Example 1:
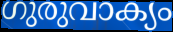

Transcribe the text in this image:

ഗുരുവാക്യം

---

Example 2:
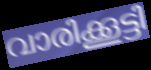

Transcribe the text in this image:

വാരിക്കൂട്ടി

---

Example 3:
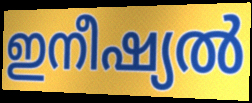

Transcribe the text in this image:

ഇനീഷ്യൽ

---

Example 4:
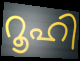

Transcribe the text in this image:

റൂഹി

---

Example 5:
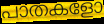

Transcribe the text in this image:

പാതകളോ